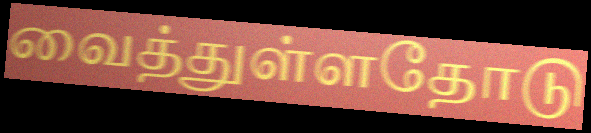
வைத்துள்ளதோடு